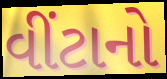
વીંટાનો